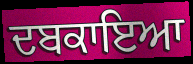
ਦਬਕਾਇਆ